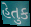
હેતુક